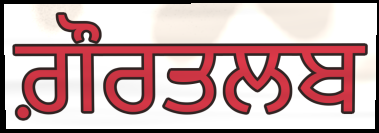
ਗ਼ੌਰਤਲਬ